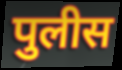
पुलीस